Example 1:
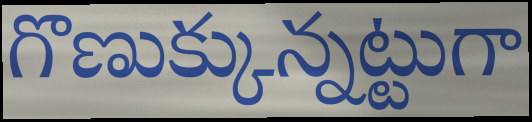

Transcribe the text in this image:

గొణుక్కున్నట్టుగా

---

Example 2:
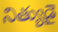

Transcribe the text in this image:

నిత్యుడై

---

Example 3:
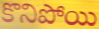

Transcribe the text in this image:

కొనిపోయి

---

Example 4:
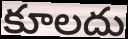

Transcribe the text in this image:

కూలదు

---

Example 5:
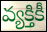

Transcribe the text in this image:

వ్యక్తికీ